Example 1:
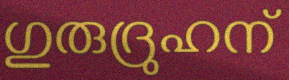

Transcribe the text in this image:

ഗുരുദ്രുഹന്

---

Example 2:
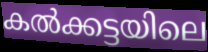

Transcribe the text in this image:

കൽക്കട്ടയിലെ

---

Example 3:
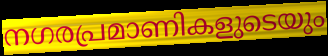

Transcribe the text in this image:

നഗരപ്രമാണികളുടെയും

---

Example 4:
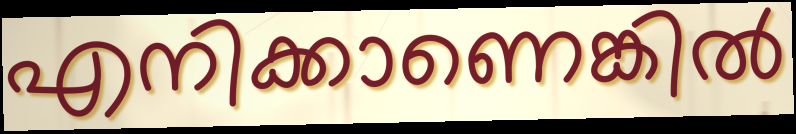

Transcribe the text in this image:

എനിക്കാണെങ്കിൽ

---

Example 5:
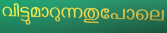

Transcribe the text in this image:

വിട്ടുമാറുന്നതുപോലെ